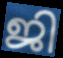
ജി